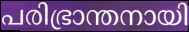
പരിഭ്രാന്തനായി